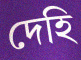
দেহি